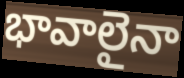
భావాలైనా